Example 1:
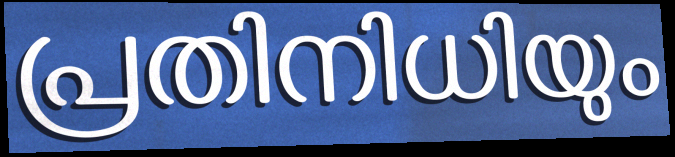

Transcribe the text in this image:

പ്രതിനിധിയും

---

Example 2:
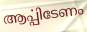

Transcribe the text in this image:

ആൎപ്പിടേണം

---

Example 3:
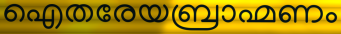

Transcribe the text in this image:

ഐതരേയബ്രാഹ്മണം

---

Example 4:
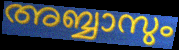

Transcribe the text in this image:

അബ്ബാസും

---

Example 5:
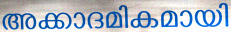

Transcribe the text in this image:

അക്കാദമികമായി